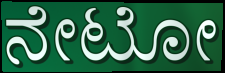
ನೇಟೋ